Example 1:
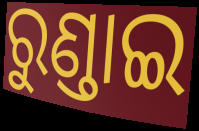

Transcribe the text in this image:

ରୁଣ୍ଡାଇ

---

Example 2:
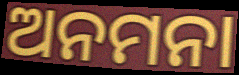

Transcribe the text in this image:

ଅନମନା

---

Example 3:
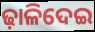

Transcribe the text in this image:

ଢ଼ାଳିଦେଇ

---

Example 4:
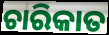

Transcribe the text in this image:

ଚାରିକାତ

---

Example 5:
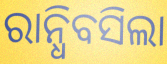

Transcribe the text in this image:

ରାନ୍ଧିବସିଲା